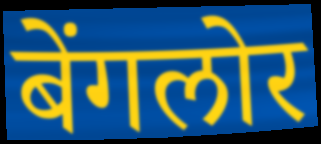
बेंगलोर